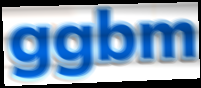
ggbm